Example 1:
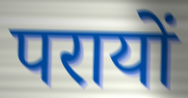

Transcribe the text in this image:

परायों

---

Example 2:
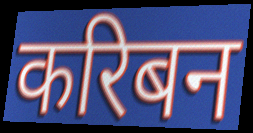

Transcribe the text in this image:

करिबन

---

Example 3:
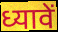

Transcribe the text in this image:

ध्यावें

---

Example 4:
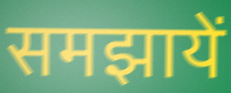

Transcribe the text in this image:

समझायें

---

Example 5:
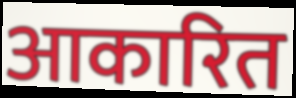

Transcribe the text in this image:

आकारित